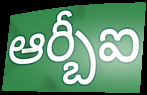
ఆర్బీఐ